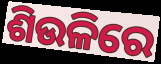
ଶିଉଳିରେ